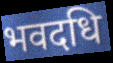
भवदधि